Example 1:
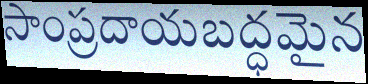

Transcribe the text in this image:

సాంప్రదాయబద్ధమైన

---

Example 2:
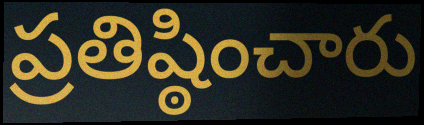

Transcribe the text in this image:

ప్రతిష్ఠించారు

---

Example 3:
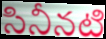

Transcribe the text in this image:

సినీనటి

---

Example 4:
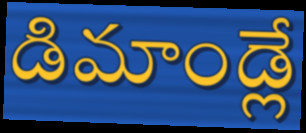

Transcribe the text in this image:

డిమాండ్లే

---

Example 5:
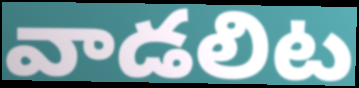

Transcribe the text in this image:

వాడలిట